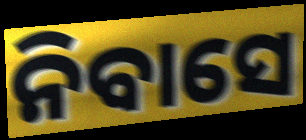
ନିବାସେ